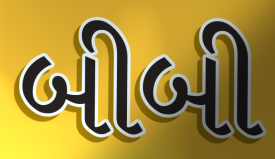
બીબી